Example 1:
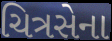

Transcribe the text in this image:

ચિત્રસેના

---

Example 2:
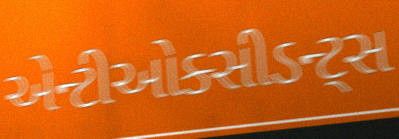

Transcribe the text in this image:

એન્ટીઓક્સીડન્ટ્સ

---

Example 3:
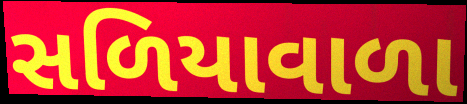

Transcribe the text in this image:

સળિયાવાળા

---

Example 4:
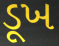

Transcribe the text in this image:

ડૂખ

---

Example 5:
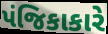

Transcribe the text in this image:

પંજિકાકારે